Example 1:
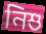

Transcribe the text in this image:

নিশু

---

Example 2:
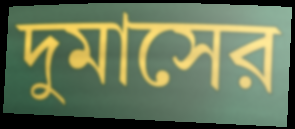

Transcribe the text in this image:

দুমাসের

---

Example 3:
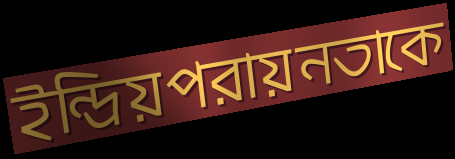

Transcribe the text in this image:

ইন্দ্রিয়পরায়নতাকে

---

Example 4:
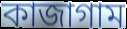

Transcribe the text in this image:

কাজাগাম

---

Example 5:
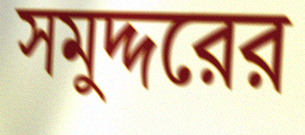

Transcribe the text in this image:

সমুদ্দরের